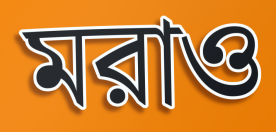
মরাও